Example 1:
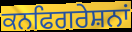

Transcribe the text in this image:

ਕਨਫਿਗਰੇਸ਼ਨਾਂ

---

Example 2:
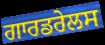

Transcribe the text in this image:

ਗਾਰਡਰੇਲਸ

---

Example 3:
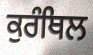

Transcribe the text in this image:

ਕੁਰੰਥਿਲ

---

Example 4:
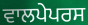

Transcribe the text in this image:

ਵਾਲਪੇਪਰਸ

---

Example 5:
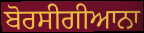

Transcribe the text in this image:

ਬੋਰਸੀਗੀਆਨਾ